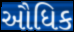
ઔધિક